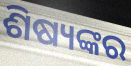
ଶିଷ୍ୟଙ୍କର